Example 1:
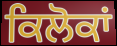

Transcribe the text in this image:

ਕਿਲੋਕਾਂ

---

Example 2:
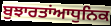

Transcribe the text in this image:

ਬੁਝਾਰਤਾਂਆਧੁਨਿਕ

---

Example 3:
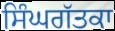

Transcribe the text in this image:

ਸਿੰਘਗੱਤਕਾ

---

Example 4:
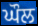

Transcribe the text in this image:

ਘੌਲ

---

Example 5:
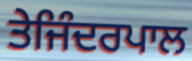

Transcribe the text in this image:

ਤੇਜਿੰਦਰਪਾਲ